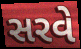
સરવે